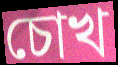
চোখ